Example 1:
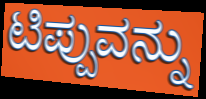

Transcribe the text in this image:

ಟಿಪ್ಪುವನ್ನು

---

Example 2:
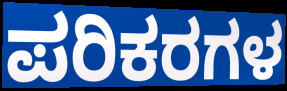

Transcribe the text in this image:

ಪರಿಕರಗಳ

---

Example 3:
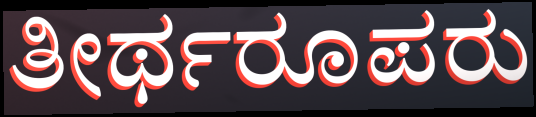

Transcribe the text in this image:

ತೀರ್ಥರೂಪರು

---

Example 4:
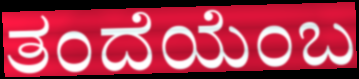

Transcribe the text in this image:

ತಂದೆಯೆಂಬ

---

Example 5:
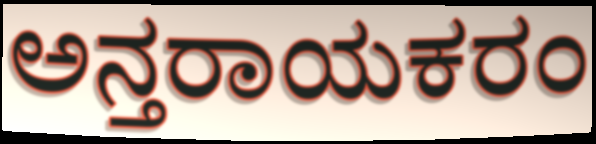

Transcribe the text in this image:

ಅನ್ತರಾಯಕರಂ